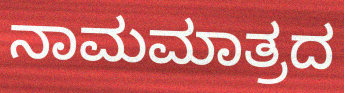
ನಾಮಮಾತ್ರದ